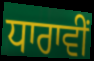
ਧਾਰਾਵੀਂ